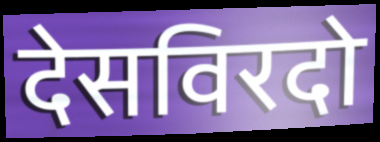
देसविरदो